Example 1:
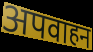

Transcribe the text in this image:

अपवाहन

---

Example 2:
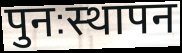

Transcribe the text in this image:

पुनःस्थापन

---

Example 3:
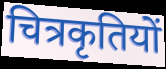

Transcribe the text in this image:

चित्रकृतियों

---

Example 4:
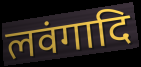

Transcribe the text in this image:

लवंगादि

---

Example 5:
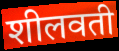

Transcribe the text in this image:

शीलवती